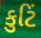
કુટિં